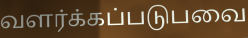
வளர்க்கப்படுபவை